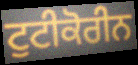
ਟੁਟੀਕੋਰੀਨ